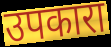
उपकारा